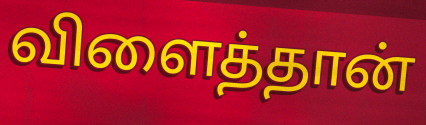
விளைத்தான்